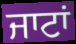
ਜਾਟਾਂ